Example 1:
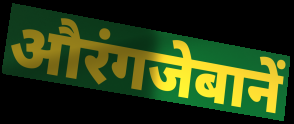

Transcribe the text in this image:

औरंगजेबानें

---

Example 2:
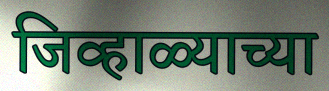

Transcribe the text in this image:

जिव्हाळ्याच्या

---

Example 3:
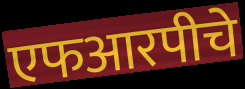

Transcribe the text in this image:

एफआरपीचे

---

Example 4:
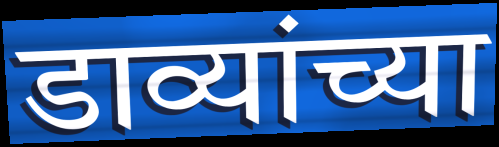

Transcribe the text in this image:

डाव्यांच्या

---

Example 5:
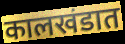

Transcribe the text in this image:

कालखंडात